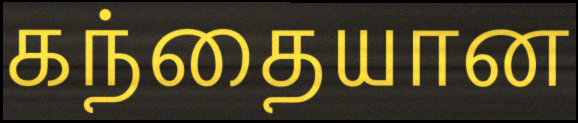
கந்தையான